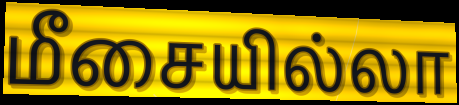
மீசையில்லா